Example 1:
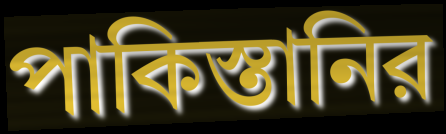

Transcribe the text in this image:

পাকিস্তানির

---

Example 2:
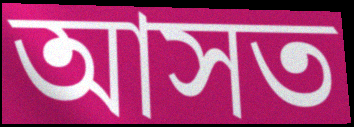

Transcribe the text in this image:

আসত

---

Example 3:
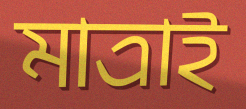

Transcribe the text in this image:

মাত্রাই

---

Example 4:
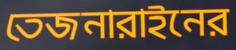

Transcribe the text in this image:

তেজনারাইনের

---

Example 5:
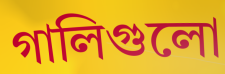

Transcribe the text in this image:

গালিগুলো